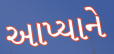
આપ્યાને